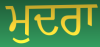
ਮੁਦਰਾ